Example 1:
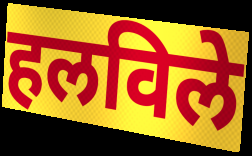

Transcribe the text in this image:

हलविले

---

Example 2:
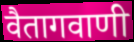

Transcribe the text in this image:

वैतागवाणी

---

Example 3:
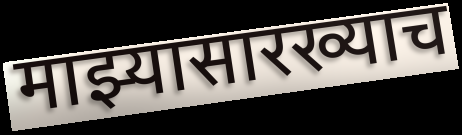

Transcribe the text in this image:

माझ्यासारख्याच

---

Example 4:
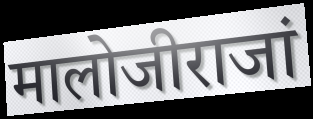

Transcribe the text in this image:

मालोजीराजां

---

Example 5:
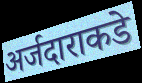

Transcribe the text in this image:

अर्जदाराकडे